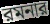
রমনার